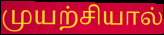
முயற்சியால்